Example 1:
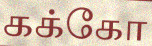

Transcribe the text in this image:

கக்கோ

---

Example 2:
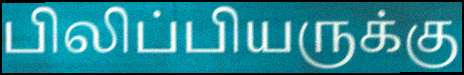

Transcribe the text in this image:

பிலிப்பியருக்கு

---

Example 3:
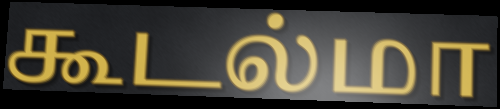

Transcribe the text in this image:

கூடல்மா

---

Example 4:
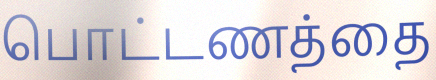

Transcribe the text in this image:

பொட்டணத்தை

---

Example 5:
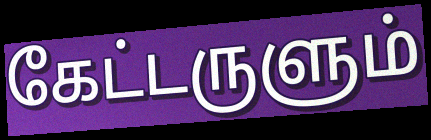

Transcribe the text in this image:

கேட்டருளும்